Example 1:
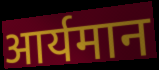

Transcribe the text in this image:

आर्यमान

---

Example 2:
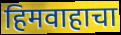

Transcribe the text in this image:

हिमवाहाचा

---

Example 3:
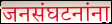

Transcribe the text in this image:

जनसंघटनांना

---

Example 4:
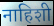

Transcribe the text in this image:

नाहिशी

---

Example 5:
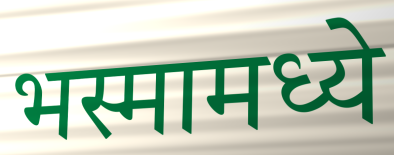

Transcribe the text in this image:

भस्मामध्ये